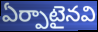
ఏర్పాటైనవి